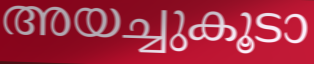
അയച്ചുകൂടാ